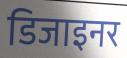
डिजाइनर